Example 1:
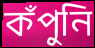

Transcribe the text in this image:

কঁপুনি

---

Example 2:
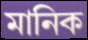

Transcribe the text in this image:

মানিক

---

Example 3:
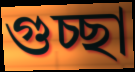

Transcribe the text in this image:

গুচ্ছা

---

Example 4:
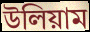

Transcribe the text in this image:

উলিয়াম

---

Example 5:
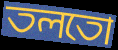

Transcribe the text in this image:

তলতো